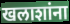
खलाशांना